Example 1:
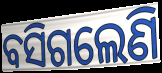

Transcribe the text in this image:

ବସିଗଲେଣି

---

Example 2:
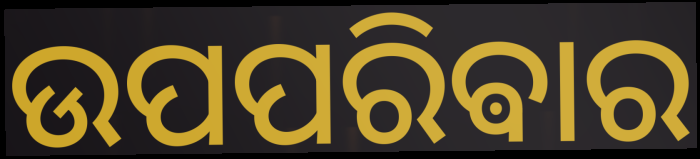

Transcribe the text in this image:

ଉପପରିଵାର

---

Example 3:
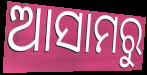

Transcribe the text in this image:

ଆସାମରୁ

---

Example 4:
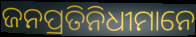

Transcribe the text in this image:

ଜନପ୍ରତିନିଧୀମାନେ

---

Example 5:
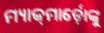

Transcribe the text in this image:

ମ୍ୟାକ୍‍ମାର୍ଡ଼ୋଙ୍କୁ